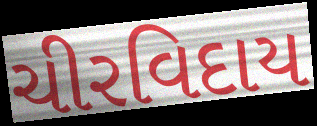
ચીરવિદાય